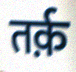
तर्क़